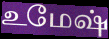
உமேஷ்